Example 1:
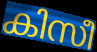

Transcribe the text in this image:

കിസീ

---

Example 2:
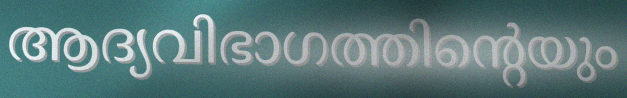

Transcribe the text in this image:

ആദ്യവിഭാഗത്തിന്റെയും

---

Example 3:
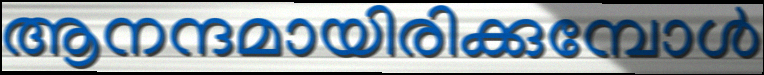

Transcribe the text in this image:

ആനന്ദമായിരിക്കുമ്പോൾ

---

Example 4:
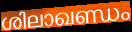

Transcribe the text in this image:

ശിലാഖണ്ഡം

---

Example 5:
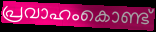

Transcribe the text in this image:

പ്രവാഹംകൊണ്ട്